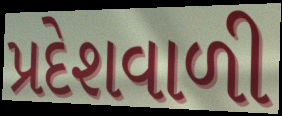
પ્રદેશવાળી